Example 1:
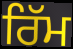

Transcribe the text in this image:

ਰਿੱਮ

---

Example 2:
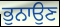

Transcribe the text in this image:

ਭੁਨਾਉਣ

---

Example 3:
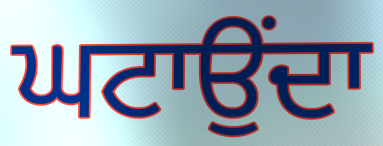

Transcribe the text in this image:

ਘਟਾਉਂਦਾ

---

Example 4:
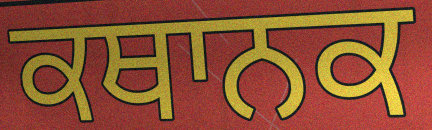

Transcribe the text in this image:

ਕਥਾਨਕ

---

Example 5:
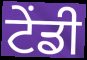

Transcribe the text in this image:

ਟੇਂਡੀ